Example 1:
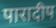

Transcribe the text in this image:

पारादीप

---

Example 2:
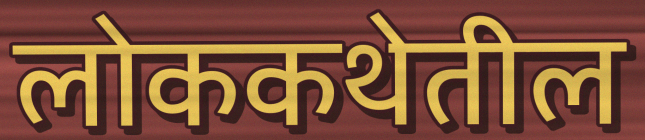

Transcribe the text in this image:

लोककथेतील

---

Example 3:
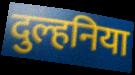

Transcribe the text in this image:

दुल्हनिया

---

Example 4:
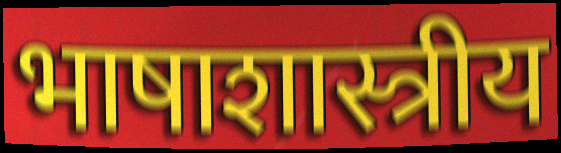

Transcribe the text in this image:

भाषाशास्त्रीय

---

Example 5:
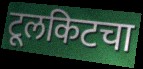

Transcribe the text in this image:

टूलकिटचा